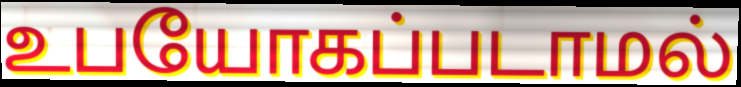
உபயோகப்படாமல்